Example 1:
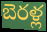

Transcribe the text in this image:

బెరళ్ల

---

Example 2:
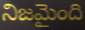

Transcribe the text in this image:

నిజమైంది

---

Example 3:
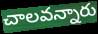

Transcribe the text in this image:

చాలవన్నారు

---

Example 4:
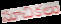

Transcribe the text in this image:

సూచికలు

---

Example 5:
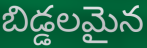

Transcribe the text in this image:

బిడ్డలమైన